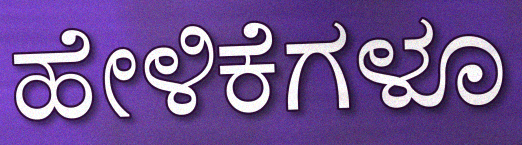
ಹೇಳಿಕೆಗಳೂ